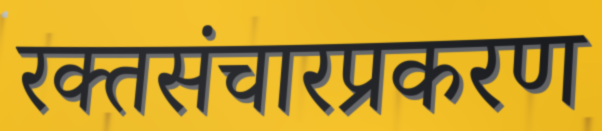
रक्तसंचारप्रकरण